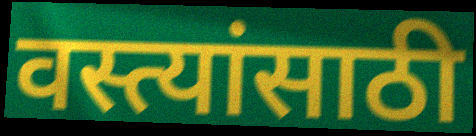
वस्त्यांसाठी